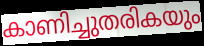
കാണിച്ചുതരികയും